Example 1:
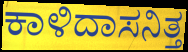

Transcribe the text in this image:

ಕಾಳಿದಾಸನಿತ್ತ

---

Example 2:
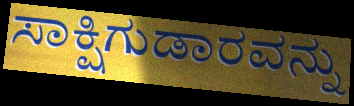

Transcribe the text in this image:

ಸಾಕ್ಷಿಗುಡಾರವನ್ನು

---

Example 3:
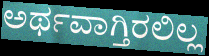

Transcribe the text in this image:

ಅರ್ಥವಾಗ್ತಿರಲಿಲ್ಲ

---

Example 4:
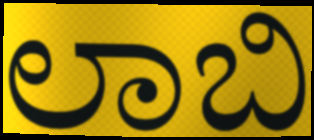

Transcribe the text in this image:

ಲಾಬಿ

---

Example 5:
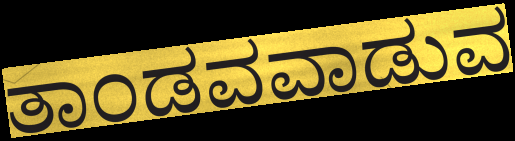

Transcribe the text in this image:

ತಾಂಡವವಾಡುವ